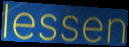
lessen